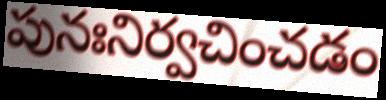
పునఃనిర్వచించడం